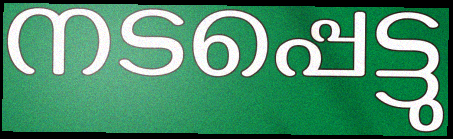
നടപ്പെട്ടു